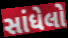
સાંધેલો